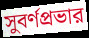
সুবর্ণপ্রভার